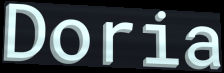
Doria